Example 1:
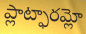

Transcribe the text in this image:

ప్లాట్ఫారమ్లో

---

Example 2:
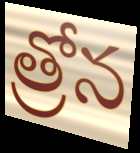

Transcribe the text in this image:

త్రోన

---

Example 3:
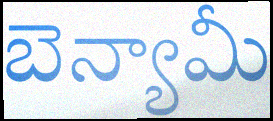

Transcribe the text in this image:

బెన్యామీ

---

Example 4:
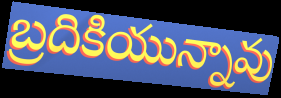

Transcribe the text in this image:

బ్రదికియున్నావు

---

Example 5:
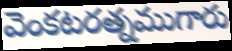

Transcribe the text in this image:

వెంకటరత్నముగారు